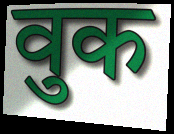
वुक